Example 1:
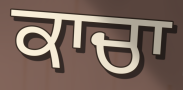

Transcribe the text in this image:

ਕਾਚਾ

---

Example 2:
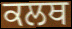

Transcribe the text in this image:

ਕਲਥ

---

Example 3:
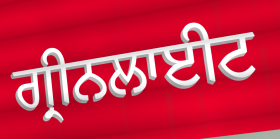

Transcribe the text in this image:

ਗ੍ਰੀਨਲਾਈਟ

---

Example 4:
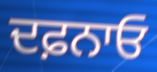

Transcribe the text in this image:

ਦਫ਼ਨਾਓ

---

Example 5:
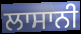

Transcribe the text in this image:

ਲਾਸਾਨੀ